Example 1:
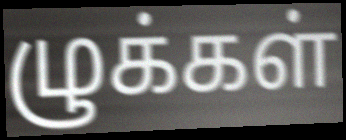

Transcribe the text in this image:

ழுக்கள்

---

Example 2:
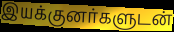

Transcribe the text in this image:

இயக்குனர்களுடன்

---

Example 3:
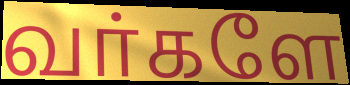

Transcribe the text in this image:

வர்களே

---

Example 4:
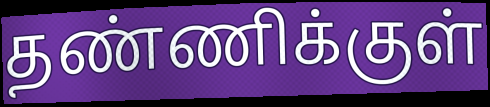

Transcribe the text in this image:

தண்ணிக்குள்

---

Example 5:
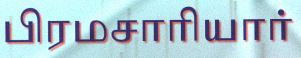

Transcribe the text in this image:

பிரமசாரியார்